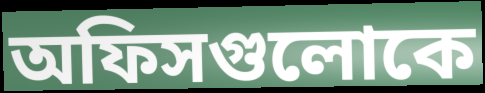
অফিসগুলোকে